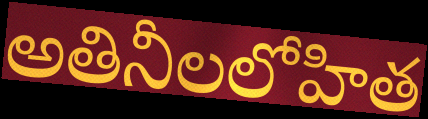
అతినీలలోహిత